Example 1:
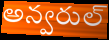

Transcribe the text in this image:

అన్వరుల్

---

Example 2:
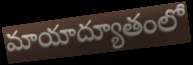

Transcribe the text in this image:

మాయాద్యూతంలో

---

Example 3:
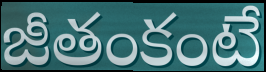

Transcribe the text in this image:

జీతంకంటే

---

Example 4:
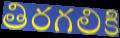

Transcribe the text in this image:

తిరగలికి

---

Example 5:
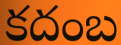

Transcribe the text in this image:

కదంబ